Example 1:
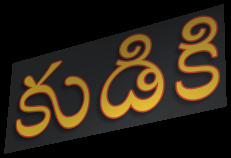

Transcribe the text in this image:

కుడికి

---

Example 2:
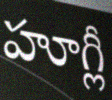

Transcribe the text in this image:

హూగ్లీ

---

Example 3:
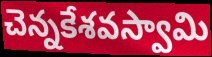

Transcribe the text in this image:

చెన్నకేశవస్వామి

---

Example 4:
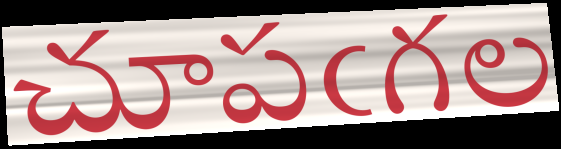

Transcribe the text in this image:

చూపఁగల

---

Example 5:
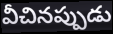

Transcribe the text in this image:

వీచినప్పుడు